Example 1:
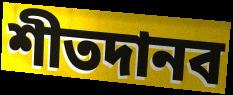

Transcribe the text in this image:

শীতদানব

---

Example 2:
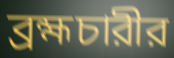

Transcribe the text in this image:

ব্রহ্মচারীর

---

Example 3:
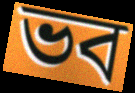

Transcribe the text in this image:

ভব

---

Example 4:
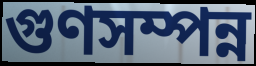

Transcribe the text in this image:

গুণসম্পন্ন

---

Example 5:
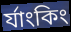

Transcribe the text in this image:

র্যাংকিং